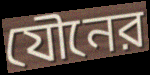
যৌনের